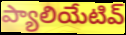
ప్యాలియేటివ్